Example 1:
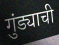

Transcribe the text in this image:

गुंड्याची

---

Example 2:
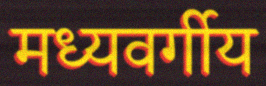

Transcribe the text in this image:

मध्यवर्गीय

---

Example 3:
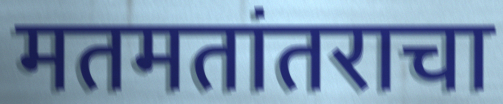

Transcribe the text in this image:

मतमतांतराचा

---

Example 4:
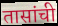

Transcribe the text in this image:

तासांची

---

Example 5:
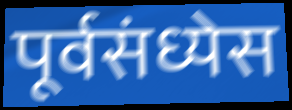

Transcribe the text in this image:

पूर्वसंध्येस